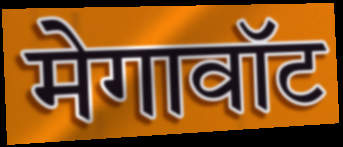
मेगावॉट